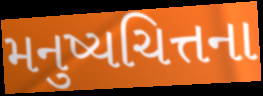
મનુષ્યચિત્તના